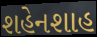
શહેનશાહ